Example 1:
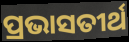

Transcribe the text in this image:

ପ୍ରଭାସତୀର୍ଥ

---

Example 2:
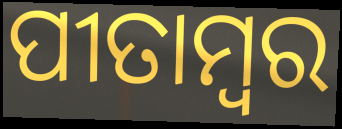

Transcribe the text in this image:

ପୀତାମ୍ବର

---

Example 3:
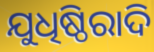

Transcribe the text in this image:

ଯୁଧିଷ୍ଠିରାଦି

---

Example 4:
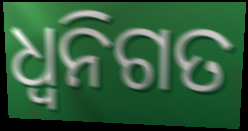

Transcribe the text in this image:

ଧ୍ଵନିଗତ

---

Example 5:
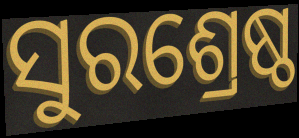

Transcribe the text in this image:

ସୁରଶ୍ରେଷ୍ଠ